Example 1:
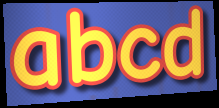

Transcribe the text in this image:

abcd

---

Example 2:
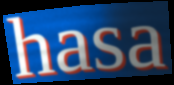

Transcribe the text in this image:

hasa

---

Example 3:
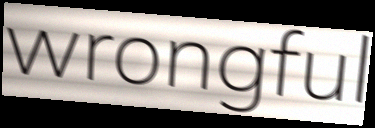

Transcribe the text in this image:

wrongful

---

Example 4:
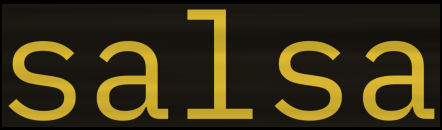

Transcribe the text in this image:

salsa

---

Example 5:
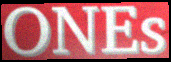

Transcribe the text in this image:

ONEs